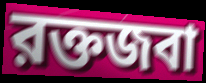
রক্তজবা